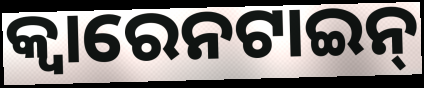
କ୍ୱାରେନଟାଇନ୍